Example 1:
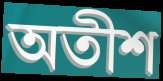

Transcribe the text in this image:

অতীশ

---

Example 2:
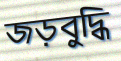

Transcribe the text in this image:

জড়বুদ্ধি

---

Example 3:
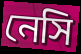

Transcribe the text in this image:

নেসি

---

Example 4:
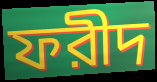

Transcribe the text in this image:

ফরীদ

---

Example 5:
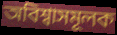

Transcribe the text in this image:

অবিশ্বাসমূলক